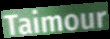
Taimour